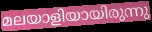
മലയാളിയായിരുന്നു